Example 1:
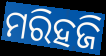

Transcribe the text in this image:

ମରିହଜି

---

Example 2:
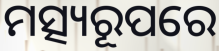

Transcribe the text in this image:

ମତ୍ସ୍ୟରୂପରେ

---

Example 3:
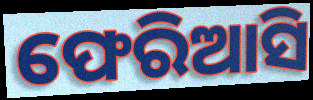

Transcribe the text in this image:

ଫେରିଆସି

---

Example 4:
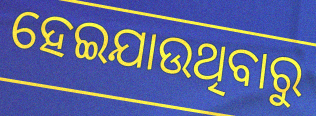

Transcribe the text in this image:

ହେଇଯାଉଥିବାରୁ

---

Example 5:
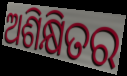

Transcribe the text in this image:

ଅଶିକ୍ଷିତର